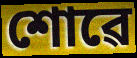
শোৱে